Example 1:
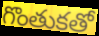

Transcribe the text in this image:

గొంతుకతో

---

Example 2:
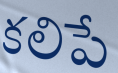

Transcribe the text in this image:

కలిపే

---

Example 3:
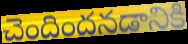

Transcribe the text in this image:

చెందిందనడానికి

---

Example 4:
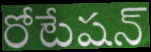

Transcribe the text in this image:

రోటేషన్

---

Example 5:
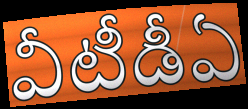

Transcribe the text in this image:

వీటీడీఏ